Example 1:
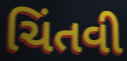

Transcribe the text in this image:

ચિંતવી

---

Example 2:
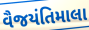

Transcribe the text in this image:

વૈજયંતિમાલા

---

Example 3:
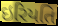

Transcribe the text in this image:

ઇરિયતિ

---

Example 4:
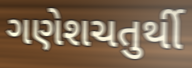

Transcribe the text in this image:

ગણેશચતુર્થી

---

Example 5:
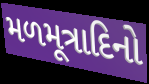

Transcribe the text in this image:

મળમૂત્રાદિનો